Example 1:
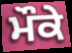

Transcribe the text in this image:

ਮੌਕੇ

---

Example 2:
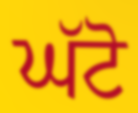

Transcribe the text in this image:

ਘੱਟੋ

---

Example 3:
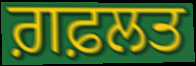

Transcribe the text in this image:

ਗ਼ਫ਼ਲਤ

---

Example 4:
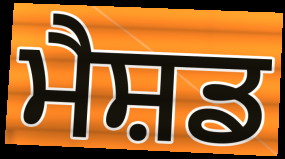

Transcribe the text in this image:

ਮੈਸ਼ਡ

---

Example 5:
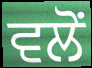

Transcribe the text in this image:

ਵਲੋਂ